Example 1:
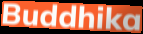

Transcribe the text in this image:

Buddhika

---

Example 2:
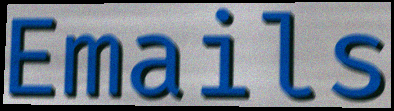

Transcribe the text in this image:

Emails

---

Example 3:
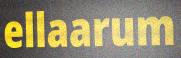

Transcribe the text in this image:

ellaarum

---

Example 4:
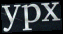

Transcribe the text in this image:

ypx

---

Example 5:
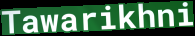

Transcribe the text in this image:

Tawarikhni